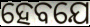
ହେବଯେ